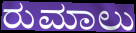
ರುಮಾಲು